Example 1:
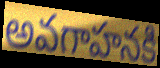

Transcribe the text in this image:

అవగాహనకి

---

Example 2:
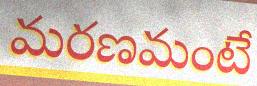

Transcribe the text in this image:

మరణమంటే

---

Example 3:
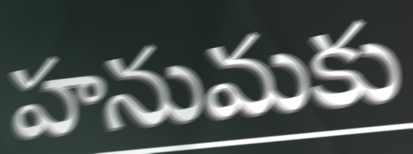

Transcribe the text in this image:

హనుమకు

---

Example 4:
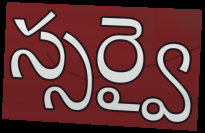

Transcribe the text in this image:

స్సర్వై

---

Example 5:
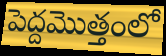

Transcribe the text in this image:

పెద్దమొత్తంలో